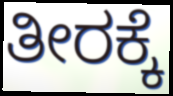
ತೀರಕ್ಕೆ